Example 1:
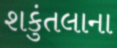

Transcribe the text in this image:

શકુંતલાના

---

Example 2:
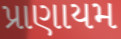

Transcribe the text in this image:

પ્રાણાયમ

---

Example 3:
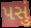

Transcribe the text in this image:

પસું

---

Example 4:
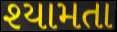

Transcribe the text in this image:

શ્યામતા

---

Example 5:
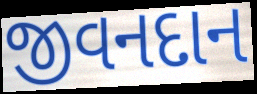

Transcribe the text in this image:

જીવનદાન